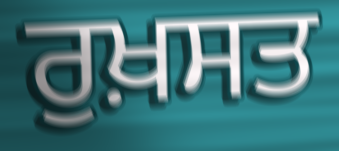
ਰੁਖ਼ਸਤ